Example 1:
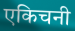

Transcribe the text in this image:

एकिचनी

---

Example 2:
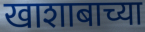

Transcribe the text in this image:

खाशाबाच्या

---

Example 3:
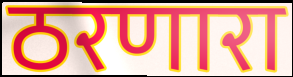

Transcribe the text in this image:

ठरणारा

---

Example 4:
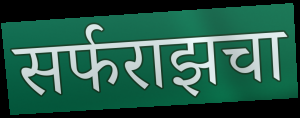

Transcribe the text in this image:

सर्फराझचा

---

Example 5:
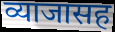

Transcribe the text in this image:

व्याजासह